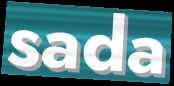
sada